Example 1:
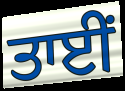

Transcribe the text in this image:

ਤਾਈਂ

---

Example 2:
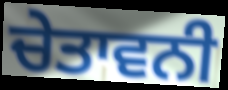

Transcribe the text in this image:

ਚੇਤਾਵਨੀ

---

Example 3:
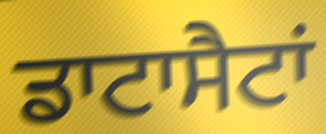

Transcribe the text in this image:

ਡਾਟਾਸੈਟਾਂ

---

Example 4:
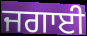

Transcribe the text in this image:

ਜਗਾਈ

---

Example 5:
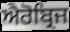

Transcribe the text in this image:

ਐਰੋਬ੍ਰਿਜ